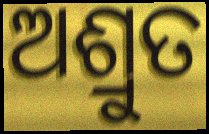
ଅଶ୍ରୁତ